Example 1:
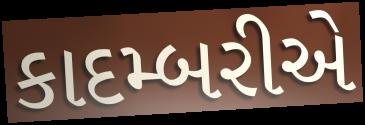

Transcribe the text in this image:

કાદમ્બરીએ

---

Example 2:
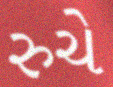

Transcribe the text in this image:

રુચે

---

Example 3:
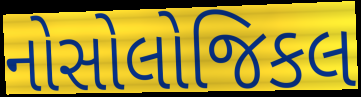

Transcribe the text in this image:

નોસોલોજિકલ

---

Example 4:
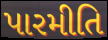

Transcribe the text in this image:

પારમીતિ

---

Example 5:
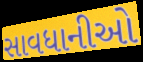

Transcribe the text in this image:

સાવધાનીઓ